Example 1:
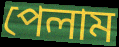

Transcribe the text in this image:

পেলাম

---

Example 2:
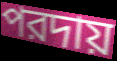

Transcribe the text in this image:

পরদায়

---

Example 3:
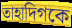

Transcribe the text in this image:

তাহাদিগকে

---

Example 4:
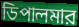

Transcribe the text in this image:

ডিপালমার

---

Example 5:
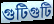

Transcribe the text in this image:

গুটিগুটি